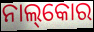
ନାଲ୍‌କୋର